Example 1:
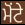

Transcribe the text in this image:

ਮੋਂਟੇ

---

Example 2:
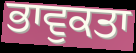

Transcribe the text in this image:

ਭਾਵੁਕਤਾ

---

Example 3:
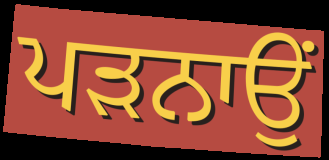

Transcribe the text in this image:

ਪਡ਼ਨਾਉਂ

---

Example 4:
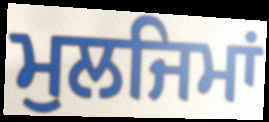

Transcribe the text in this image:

ਮੁਲਜਿਮਾਂ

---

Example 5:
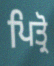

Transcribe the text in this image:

ਪਿਤ੍ਰੋ